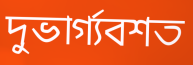
দুভার্গ্যবশত